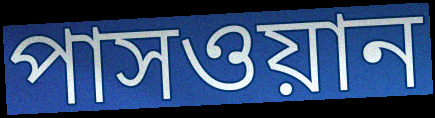
পাসওয়ান